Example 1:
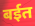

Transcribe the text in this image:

बईत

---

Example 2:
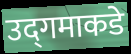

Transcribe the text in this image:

उद्‌गमाकडे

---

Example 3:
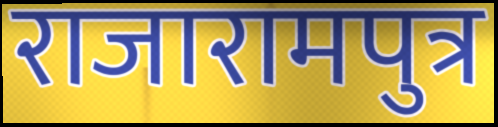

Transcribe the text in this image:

राजारामपुत्र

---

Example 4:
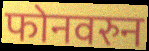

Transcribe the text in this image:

फोनवरुन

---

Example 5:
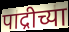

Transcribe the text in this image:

पाद्रीच्या